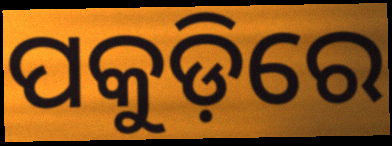
ପକୁଡ଼ିରେ